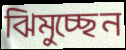
ঝিমুচ্ছেন